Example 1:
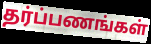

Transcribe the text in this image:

தர்ப்பணங்கள்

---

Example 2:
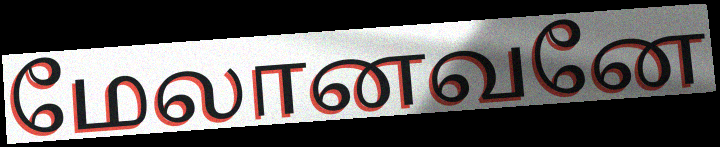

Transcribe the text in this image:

மேலானவனே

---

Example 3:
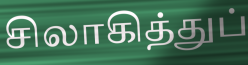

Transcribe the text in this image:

சிலாகித்துப்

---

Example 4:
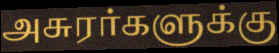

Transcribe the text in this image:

அசுரர்களுக்கு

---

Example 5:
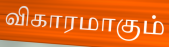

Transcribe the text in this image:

விகாரமாகும்